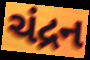
ચંદ્રન